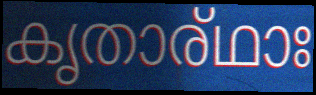
കൃതാര്ഥാഃ